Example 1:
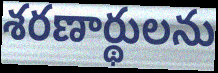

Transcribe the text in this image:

శరణార్థులను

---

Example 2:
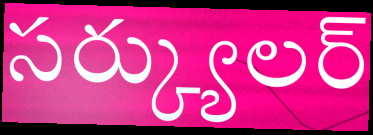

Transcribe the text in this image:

సర్క్యులర్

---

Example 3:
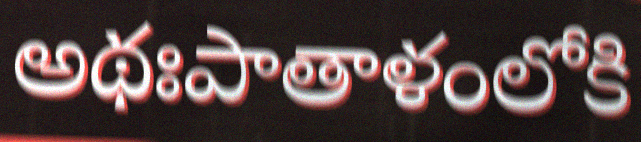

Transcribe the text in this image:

అథఃపాతాళంలోకి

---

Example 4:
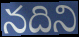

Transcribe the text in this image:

నదిని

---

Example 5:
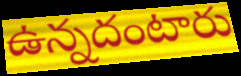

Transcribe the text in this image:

ఉన్నదంటారు